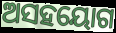
ଅସହୟୋଗ